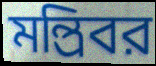
মন্ত্রিবর